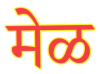
मेळ